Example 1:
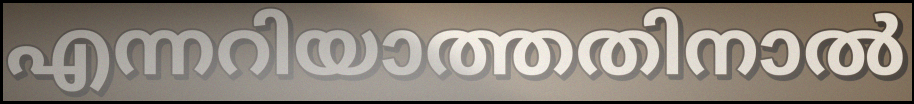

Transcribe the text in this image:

എന്നറിയാത്തതിനാൽ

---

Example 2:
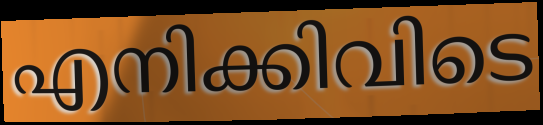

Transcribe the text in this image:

എനിക്കിവിടെ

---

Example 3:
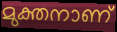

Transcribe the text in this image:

മുക്തനാണ്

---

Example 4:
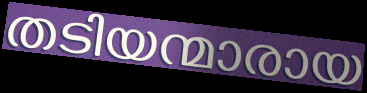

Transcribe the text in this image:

തടിയന്മാരായ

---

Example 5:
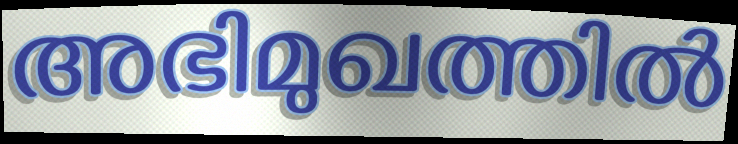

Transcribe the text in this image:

അഭിമുഖത്തിൽ